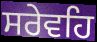
ਸਰੇਵਹਿ